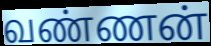
வண்ணன்